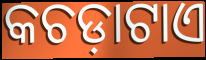
କଚଡ଼ାଟାଏ